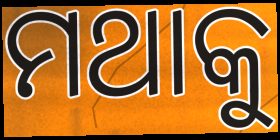
ମଥାକୁ